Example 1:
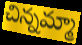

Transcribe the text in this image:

చిన్నమ్మా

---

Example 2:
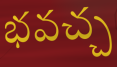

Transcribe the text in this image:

భవచ్చ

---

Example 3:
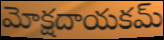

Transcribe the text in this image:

మోక్షదాయకమ్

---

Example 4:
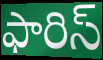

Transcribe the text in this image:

ఫారిస్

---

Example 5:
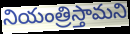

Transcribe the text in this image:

నియంత్రిస్తామని